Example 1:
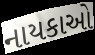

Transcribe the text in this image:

નાયકાઓ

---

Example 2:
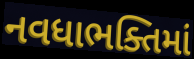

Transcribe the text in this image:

નવધાભક્તિમાં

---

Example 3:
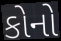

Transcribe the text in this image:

કોનો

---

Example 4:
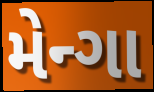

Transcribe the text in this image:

મેન્ગા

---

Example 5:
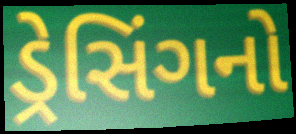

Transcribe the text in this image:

ડ્રેસિંગનો